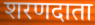
शरणदाता